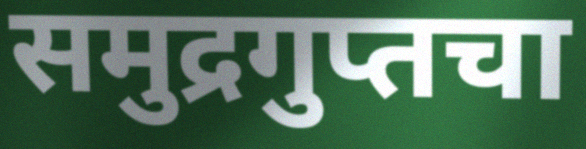
समुद्रगुप्तचा